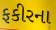
ફકીરના